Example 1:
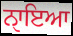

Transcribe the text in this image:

ਨੑਾਇਆ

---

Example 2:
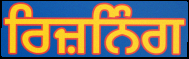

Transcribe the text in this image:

ਰਿਜ਼ਨਿੰਗ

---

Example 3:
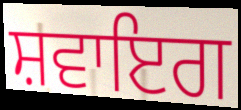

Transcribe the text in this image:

ਸ਼ਵਾਇਗ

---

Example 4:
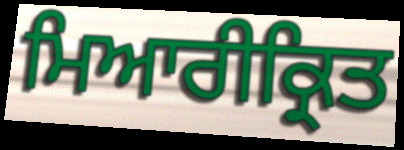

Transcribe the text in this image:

ਮਿਆਰੀਕ੍ਰਿਤ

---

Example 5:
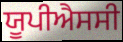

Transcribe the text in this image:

ਯੂਪੀਐਸਸੀ